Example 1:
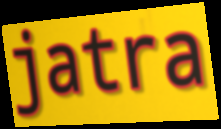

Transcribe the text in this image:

jatra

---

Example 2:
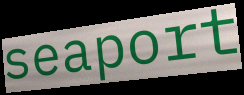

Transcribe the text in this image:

seaport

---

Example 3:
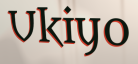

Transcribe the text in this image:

Ukiyo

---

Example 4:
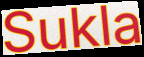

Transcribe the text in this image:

Sukla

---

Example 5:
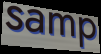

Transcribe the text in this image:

samp